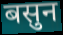
बसुन